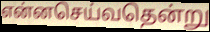
என்னசெய்வதென்று